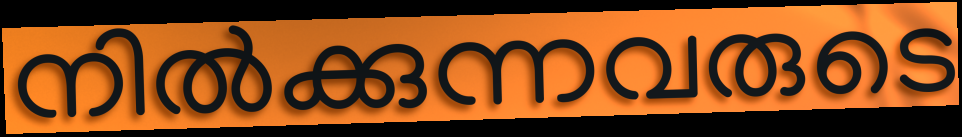
നിൽക്കുന്നവരുടെ